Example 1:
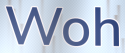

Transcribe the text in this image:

Woh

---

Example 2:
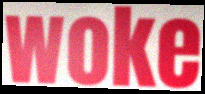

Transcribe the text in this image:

woke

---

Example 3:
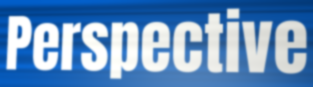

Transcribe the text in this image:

Perspective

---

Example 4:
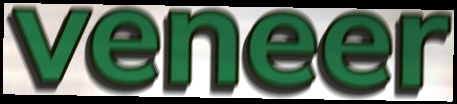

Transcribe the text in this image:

veneer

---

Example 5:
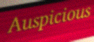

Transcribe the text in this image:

Auspicious